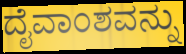
ದೈವಾಂಶವನ್ನು